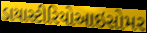
ડાયાસ્ટીરિયોઆઇસોમર